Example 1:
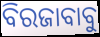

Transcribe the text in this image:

ବିରଜାବାବୁ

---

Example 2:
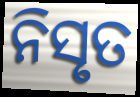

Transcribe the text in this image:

ନିସୃତ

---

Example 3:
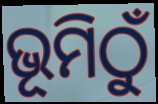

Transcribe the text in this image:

ଭୂମିଠୁଁ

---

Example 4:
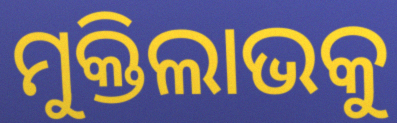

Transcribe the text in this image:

ମୁକ୍ତିଲାଭକୁ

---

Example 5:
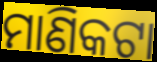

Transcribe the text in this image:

ମାଣିକଟା